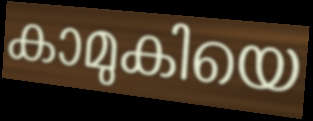
കാമുകിയെ